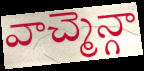
వాచ్మెన్గా